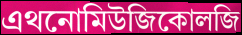
এথনোমিউজিকোলজি